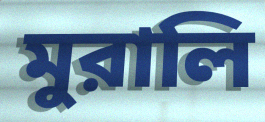
মুরালি